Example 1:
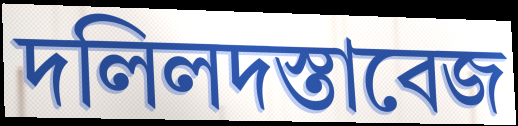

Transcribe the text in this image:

দলিলদস্তাবেজ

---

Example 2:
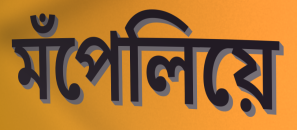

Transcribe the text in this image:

মঁপেলিয়ে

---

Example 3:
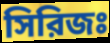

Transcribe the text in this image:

সিরিজঃ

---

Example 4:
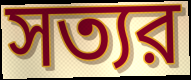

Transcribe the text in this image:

সত্যর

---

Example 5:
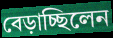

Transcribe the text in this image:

বেড়াচ্ছিলেন